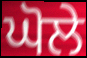
ਘੋਲੇ